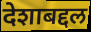
देशाबद्दल